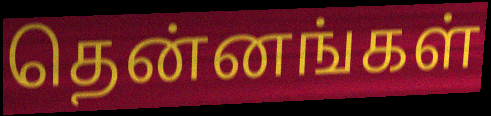
தென்னங்கள்